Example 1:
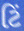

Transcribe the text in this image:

ટિં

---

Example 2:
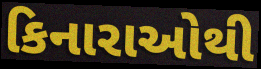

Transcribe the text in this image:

કિનારાઓથી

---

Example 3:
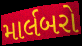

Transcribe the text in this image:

માર્લબરો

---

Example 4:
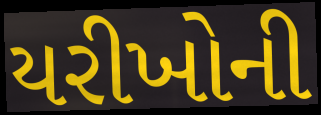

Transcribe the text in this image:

યરીખોની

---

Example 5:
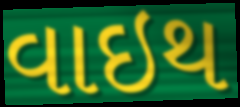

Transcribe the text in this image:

વાઇથ